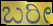
ಬರೀ